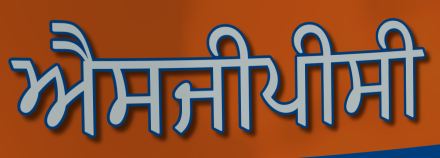
ਐਸਜੀਪੀਸੀ